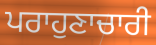
ਪਰਾਹੁਣਾਚਾਰੀ